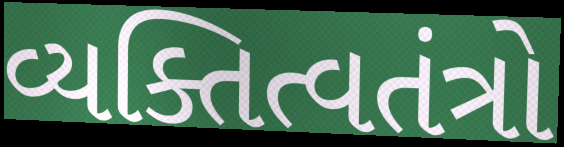
વ્યક્તિત્વતંત્રો